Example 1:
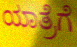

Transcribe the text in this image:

ಯಾತ್ರೆಗೆ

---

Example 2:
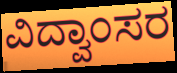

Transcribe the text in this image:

ವಿದ್ವಾಂಸರ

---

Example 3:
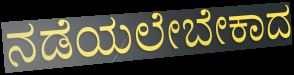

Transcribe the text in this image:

ನಡೆಯಲೇಬೇಕಾದ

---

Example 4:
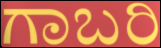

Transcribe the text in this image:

ಗಾಬರಿ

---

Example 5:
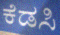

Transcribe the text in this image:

ಕೆಡಸಿ